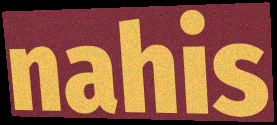
nahis